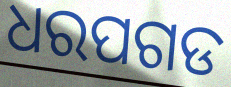
ଧରପଗଡ